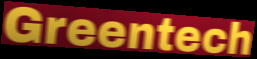
Greentech